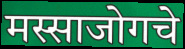
मस्साजोगचे